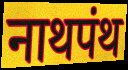
नाथपंथ